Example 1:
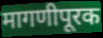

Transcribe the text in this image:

मागणीपूरक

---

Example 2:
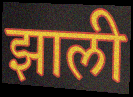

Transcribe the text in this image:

झाली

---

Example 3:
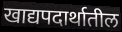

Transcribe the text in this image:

खाद्यपदार्थातील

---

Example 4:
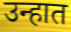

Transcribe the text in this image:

उन्हात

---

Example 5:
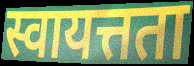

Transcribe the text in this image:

स्वायत्तता